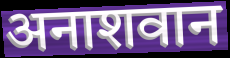
अनाशवान